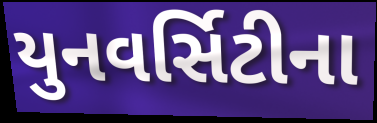
યુનવર્સિટીના